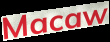
Macaw